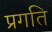
प्रगति